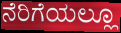
ನೆರಿಗೆಯಲ್ಲೂ